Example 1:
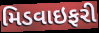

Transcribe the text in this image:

મિડવાઇફરી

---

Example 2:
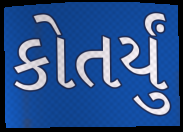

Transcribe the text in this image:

કોતર્યું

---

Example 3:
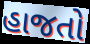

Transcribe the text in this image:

હાજતો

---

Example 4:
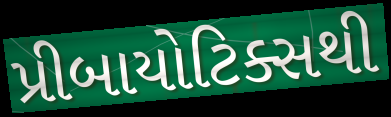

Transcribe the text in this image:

પ્રીબાયોટિક્સથી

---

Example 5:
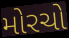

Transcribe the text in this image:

મોરચો